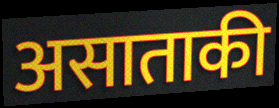
असाताकी